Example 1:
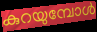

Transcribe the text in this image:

കുറയുമ്പോൾ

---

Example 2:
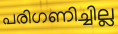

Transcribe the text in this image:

പരിഗണിച്ചില്ല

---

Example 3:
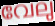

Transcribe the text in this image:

വേലു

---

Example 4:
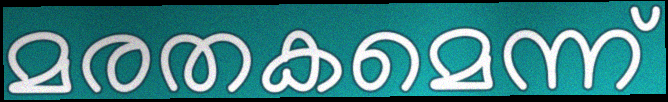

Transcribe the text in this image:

മരതകമെന്ന്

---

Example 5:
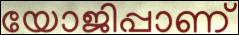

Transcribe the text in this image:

യോജിപ്പാണ്